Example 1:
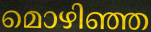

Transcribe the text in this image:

മൊഴിഞ്ഞ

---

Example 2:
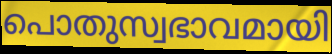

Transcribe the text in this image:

പൊതുസ്വഭാവമായി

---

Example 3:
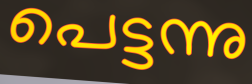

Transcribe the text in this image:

പെട്ടന്നു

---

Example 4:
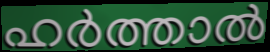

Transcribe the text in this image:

ഹർത്താൽ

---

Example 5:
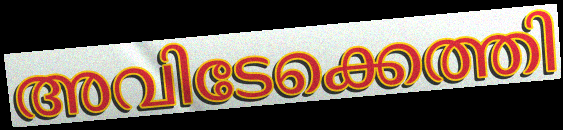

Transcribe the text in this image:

അവിടേക്കെത്തി